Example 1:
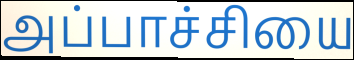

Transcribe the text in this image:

அப்பாச்சியை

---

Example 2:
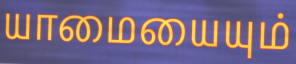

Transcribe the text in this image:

யாமையையும்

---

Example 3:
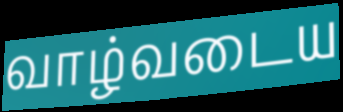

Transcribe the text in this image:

வாழ்வடைய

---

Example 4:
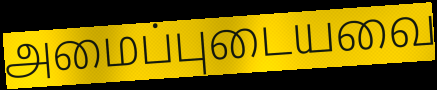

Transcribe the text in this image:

அமைப்புடையவை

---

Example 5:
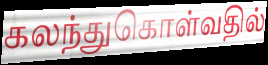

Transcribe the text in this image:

கலந்துகொள்வதில்